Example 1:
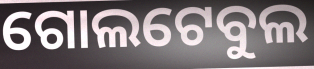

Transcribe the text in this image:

ଗୋଲଟେବୁଲ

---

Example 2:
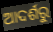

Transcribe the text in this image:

ଆଦର୍ଶରୁ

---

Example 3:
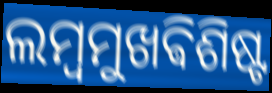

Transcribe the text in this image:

ଲମ୍ବମୁଖଵିଶିଷ୍ଟ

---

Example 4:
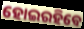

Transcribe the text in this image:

ହୋଇରହିବେ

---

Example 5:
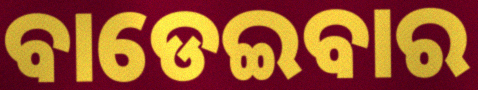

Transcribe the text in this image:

ବାଡେଇବାର